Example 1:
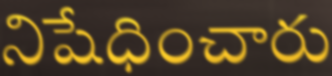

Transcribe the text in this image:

నిషేధించారు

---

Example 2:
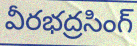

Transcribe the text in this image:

వీరభద్రసింగ్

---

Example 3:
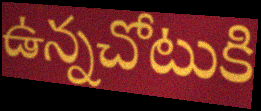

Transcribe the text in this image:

ఉన్నచోటుకి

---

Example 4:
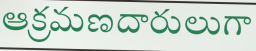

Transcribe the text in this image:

ఆక్రమణదారులుగా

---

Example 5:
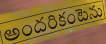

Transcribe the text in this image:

అందరికంటెను